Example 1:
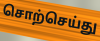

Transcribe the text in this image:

சொற்செய்து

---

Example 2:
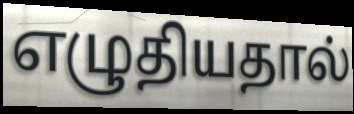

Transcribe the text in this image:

எழுதியதால்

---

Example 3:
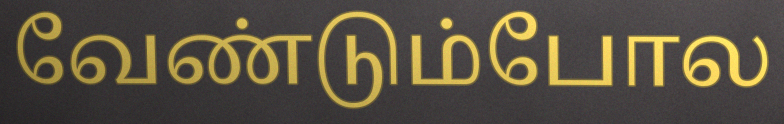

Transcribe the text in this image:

வேண்டும்போல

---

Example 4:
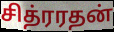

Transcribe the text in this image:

சித்ரரதன்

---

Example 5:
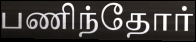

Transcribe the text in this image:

பணிந்தோர்